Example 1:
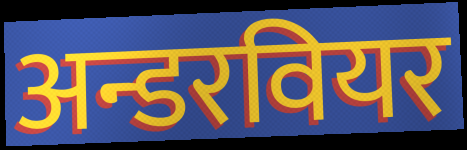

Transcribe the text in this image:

अन्डरवियर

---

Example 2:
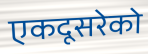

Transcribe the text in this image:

एकदूसरेको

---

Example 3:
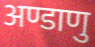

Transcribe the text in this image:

अण्डाणु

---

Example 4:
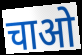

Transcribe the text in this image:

चाओ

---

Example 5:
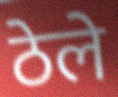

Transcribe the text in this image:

ठेले